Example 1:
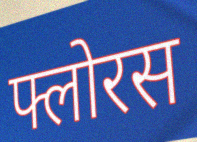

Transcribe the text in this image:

फ्लोरस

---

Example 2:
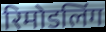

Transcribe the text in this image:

रिमोडलिंग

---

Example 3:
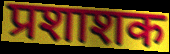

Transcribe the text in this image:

प्रशाशक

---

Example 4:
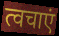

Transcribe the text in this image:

त्वचाएं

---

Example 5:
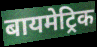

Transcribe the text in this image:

बायमेट्रिक